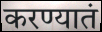
करण्यातं